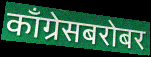
काँग्रेसबरोबर